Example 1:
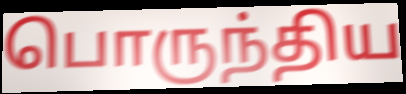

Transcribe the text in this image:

பொருந்திய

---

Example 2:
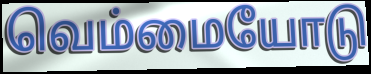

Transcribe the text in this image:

வெம்மையோடு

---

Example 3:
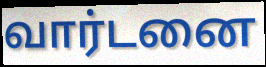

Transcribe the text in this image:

வார்டனை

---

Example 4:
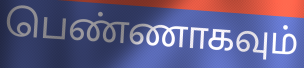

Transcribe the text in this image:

பெண்ணாகவும்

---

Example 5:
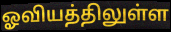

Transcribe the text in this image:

ஓவியத்திலுள்ள